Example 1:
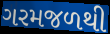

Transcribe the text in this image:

ગરમજળથી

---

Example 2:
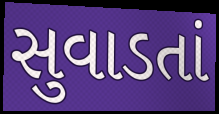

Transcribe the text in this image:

સુવાડતાં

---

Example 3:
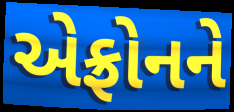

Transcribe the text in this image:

એફ્રોનને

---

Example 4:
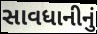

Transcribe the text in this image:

સાવધાનીનું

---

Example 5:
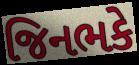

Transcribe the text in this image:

જિનભકે